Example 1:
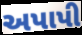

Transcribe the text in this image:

અપાપી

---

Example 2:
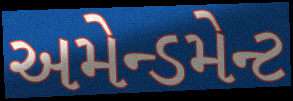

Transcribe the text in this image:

અમેન્ડમેન્ટ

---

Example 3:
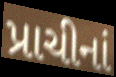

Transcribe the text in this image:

પ્રાચીનાં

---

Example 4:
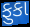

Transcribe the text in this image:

ફુકા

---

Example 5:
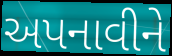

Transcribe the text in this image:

અપનાવીને